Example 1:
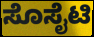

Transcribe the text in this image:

ಸೊಸೈಟಿ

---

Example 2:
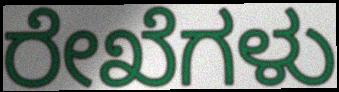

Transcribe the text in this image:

ರೇಖೆಗಳು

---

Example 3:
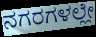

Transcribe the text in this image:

ನಗರಗಳಲ್ಲೇ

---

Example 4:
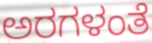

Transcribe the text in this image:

ಅರಗಳಂತೆ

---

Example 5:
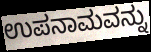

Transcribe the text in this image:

ಉಪನಾಮವನ್ನು